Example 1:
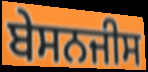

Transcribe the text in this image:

ਬੇਸਨਜੀਸ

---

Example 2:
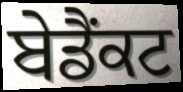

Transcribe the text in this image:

ਬੇਡੈਂਕਟ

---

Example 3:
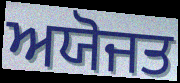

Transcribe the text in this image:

ਅਯੋਜਤ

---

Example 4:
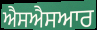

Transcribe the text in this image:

ਐਸਐਸਆਰ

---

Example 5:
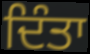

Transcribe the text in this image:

ਦਿੰਤਾ